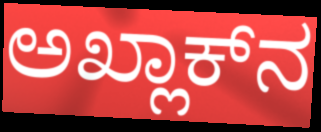
ಅಖ್ಲಾಕ್‍ನ